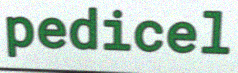
pedicel